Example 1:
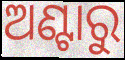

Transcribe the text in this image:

ଅଣ୍ଟାରୁ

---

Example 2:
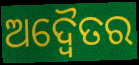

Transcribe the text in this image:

ଅଦ୍ଵୈତର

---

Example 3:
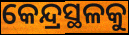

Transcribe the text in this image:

କେନ୍ଦ୍ରସ୍ଥଳକୁ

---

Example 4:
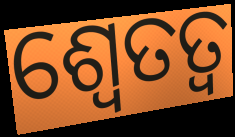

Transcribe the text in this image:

ଶ୍ୱେତତ୍ଵ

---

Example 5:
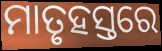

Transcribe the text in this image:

ମାତୃହସ୍ତରେ